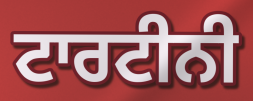
ਟਾਰਟੀਨੀ